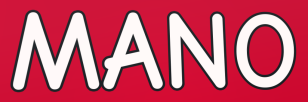
MANO